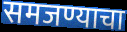
समजण्याचा